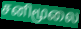
சனிமூலை